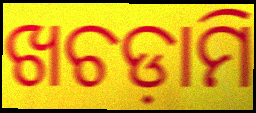
ଖଚଡ଼ାମି